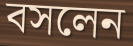
বসলেন